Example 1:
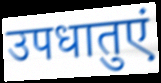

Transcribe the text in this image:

उपधातुएं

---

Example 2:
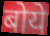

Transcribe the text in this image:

बोये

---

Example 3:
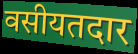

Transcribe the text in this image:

वसीयतदार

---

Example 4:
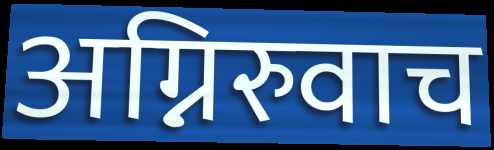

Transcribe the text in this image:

अग्निरुवाच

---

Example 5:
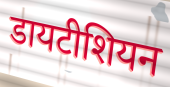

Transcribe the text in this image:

डायटीशियन